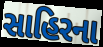
સાહિરના